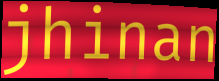
jhinan